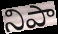
నిపా